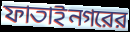
ফাতাইনগরের